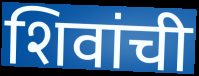
शिवांची